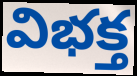
విభక్త